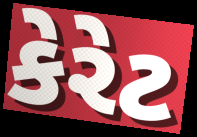
કેરેટ